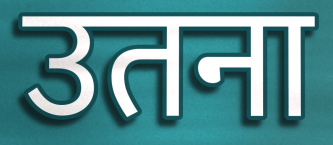
उतना